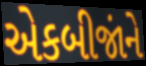
એકબીજાંને